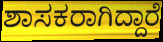
ಶಾಸಕರಾಗಿದ್ದಾರೆ